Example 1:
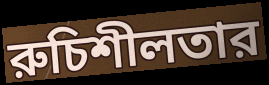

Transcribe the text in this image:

রুচিশীলতার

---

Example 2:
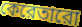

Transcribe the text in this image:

কেরেতারো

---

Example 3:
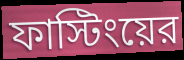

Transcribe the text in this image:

ফাস্টিংয়ের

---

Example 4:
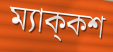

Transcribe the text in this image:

ম্যাক্‌কশ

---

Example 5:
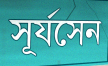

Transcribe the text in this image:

সূর্যসেন